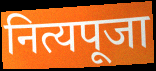
नित्यपूजा